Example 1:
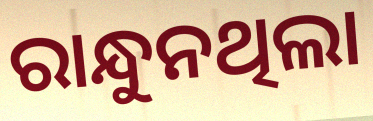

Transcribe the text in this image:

ରାନ୍ଧୁନଥିଲା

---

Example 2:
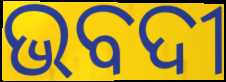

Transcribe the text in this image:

ଭବଦୀ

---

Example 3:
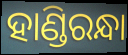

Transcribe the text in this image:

ହାଣ୍ଡିରନ୍ଧା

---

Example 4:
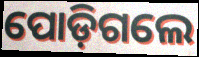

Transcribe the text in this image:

ପୋଡ଼ିଗଲେ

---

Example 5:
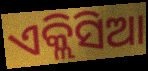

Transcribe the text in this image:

ଏକ୍ଲିସିଆ